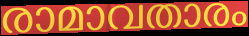
രാമാവതാരം